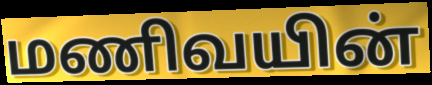
மணிவயின்